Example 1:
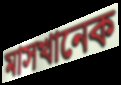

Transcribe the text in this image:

মাসখানেক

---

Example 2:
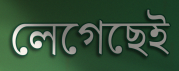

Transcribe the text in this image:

লেগেছেই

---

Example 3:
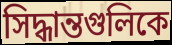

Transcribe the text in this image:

সিদ্ধান্তগুলিকে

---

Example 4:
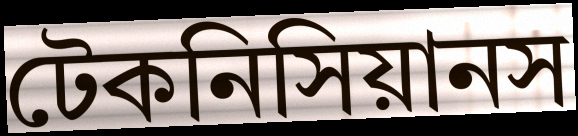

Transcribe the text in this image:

টেকনিসিয়ানস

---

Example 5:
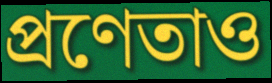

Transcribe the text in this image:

প্রণেতাও